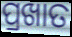
ପ୍ରଖାତ